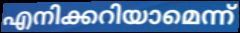
എനിക്കറിയാമെന്ന്